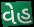
વેહ